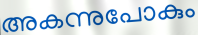
അകന്നുപോകും